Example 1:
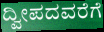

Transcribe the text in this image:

ದ್ವೀಪದವರೆಗೆ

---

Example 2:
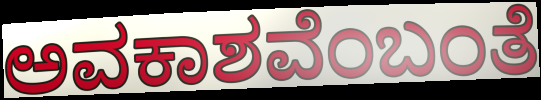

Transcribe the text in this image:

ಅವಕಾಶವೆಂಬಂತೆ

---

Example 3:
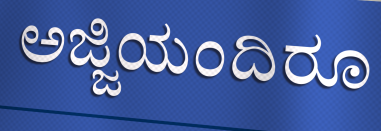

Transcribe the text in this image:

ಅಜ್ಜಿಯಂದಿರೂ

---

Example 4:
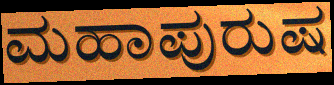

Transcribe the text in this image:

ಮಹಾಪುರುಷ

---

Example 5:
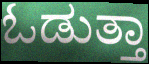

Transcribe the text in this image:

ಓಡುತ್ತಾ